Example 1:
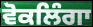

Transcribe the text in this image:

ਵੋਕਲਿੰਗਾ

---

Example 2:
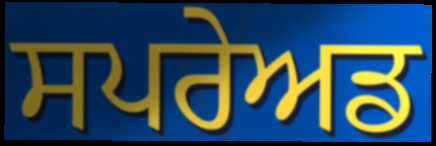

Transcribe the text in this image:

ਸਪਰੇਅਡ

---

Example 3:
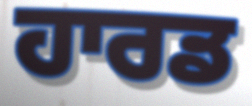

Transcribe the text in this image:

ਹਾਰਡ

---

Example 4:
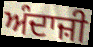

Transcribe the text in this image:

ਅੰਦਾਜ਼ੀ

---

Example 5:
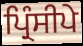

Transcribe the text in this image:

ਪ੍ਰਿੰਸੀਪੇ